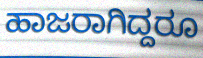
ಹಾಜರಾಗಿದ್ದರೂ